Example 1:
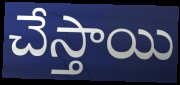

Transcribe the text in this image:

చేస్తాయి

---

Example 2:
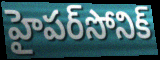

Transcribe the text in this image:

హైపర్‌సోనిక్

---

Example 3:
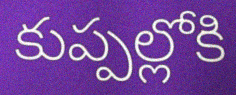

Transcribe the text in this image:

కుప్పల్లోకి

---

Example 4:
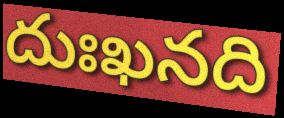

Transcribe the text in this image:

దుఃఖనది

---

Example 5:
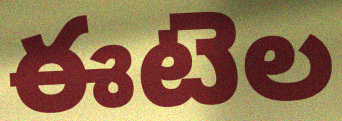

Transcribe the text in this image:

ఈటెల